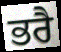
ਭਰੈ